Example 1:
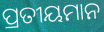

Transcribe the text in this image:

ପ୍ରତୀୟମାନ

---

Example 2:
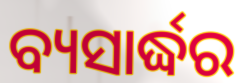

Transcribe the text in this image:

ବ୍ୟସାର୍ଦ୍ଧର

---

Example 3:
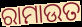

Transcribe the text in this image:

ରାମାଉତ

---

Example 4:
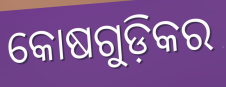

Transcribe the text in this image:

କୋଷଗୁଡ଼ିକର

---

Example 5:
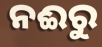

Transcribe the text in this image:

ନଈରୁ